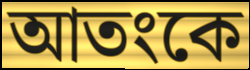
আতংকে